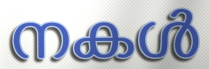
നകൾ